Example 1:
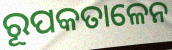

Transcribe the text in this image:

ରୂପକତାଳେନ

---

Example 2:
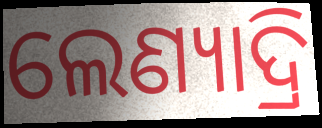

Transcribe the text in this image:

ଲେଣ୍ୟାଦ୍ରି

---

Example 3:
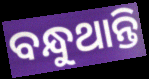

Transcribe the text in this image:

ବନ୍ଧୁଥାନ୍ତି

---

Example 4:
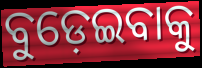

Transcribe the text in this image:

ବୁଡ଼େଇବାକୁ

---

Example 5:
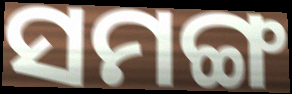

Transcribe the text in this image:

ସମଙ୍ଗ